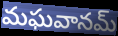
మఘవానమ్